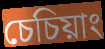
চেচিয়াং